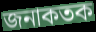
জনাকতক